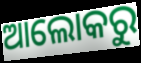
ଆଲୋକରୁ